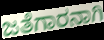
ಜತೆಗಾರನಾಗಿ